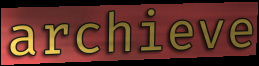
archieve